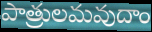
పాత్రులమవుదాం